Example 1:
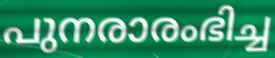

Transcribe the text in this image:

പുനരാരംഭിച്ച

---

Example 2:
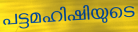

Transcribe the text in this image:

പട്ടമഹിഷിയുടെ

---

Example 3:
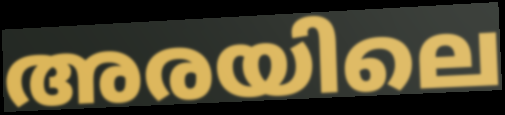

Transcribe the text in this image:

അരയിലെ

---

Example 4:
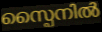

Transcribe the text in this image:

സ്പൈനിൽ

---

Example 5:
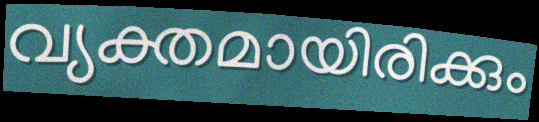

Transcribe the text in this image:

വ്യക്തമായിരിക്കും